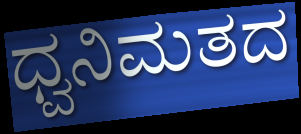
ಧ್ವನಿಮತದ